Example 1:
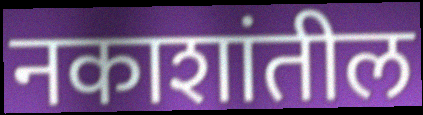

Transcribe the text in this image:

नकाशांतील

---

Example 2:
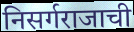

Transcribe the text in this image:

निसर्गराजाची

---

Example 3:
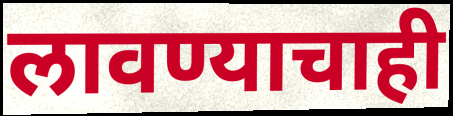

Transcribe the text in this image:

लावण्याचाही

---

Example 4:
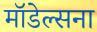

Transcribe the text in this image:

मॉडेल्सना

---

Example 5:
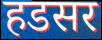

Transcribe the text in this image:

हडसर